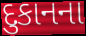
દુકાનના